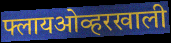
फ्लायओव्हरखाली